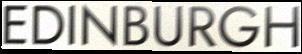
EDINBURGH